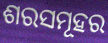
ଶରସମୂହର